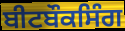
ਬੀਟਬੌਕਸਿੰਗ